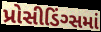
પ્રોસીડિંગ્સમાં